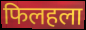
फिलहला